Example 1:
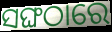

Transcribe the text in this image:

ସଙ୍ଘଠାରେ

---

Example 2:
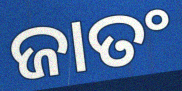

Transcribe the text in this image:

ଜାତଂ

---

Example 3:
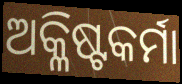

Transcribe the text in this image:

ଅକ୍ଳିଷ୍ଟକର୍ମା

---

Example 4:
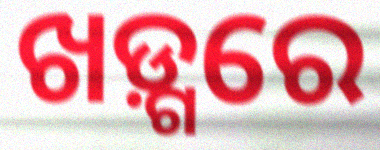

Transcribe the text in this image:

ଖଡ଼୍ଗରେ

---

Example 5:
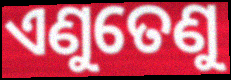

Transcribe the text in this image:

ଏଣୁତେଣୁ